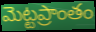
మెట్టప్రాంతం